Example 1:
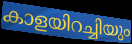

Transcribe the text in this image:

കാളയിറച്ചിയും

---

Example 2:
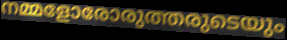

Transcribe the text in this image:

നമ്മളോരോരുത്തരുടെയും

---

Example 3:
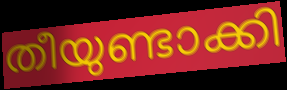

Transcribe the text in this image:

തീയുണ്ടാക്കി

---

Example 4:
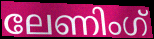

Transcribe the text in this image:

ലേണിംഗ്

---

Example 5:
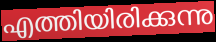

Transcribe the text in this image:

എത്തിയിരിക്കുന്നു